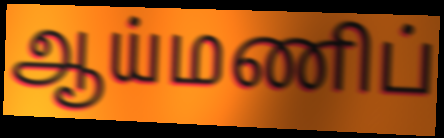
ஆய்மணிப்